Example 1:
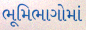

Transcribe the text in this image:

ભૂમિભાગોમાં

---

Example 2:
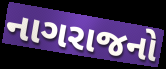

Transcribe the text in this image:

નાગરાજનો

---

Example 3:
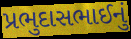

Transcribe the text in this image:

પ્રભુદાસભાઈનું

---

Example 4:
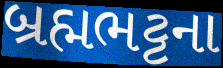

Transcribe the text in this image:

બ્રહ્મભટ્ટના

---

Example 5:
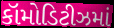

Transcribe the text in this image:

કૉમોડિટીઝમાં